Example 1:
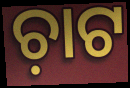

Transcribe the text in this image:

ଚ଼ାଟ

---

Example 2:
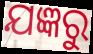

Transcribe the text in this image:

ଯଜ୍ଞରୁ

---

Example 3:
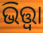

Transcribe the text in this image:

ଭିତ୍ତ୍ୱା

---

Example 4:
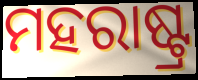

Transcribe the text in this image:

ମହରାଷ୍ଟ୍ର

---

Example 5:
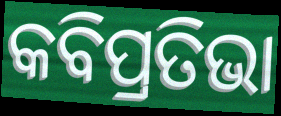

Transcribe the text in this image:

କବିପ୍ରତିଭା